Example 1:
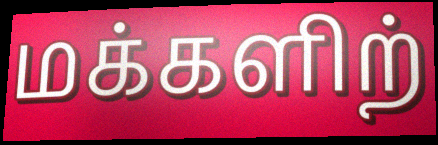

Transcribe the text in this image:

மக்களிற்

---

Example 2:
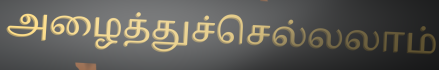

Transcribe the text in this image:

அழைத்துச்செல்லலாம்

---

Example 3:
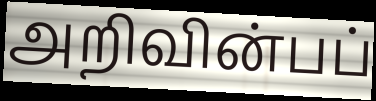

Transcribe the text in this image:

அறிவின்பப்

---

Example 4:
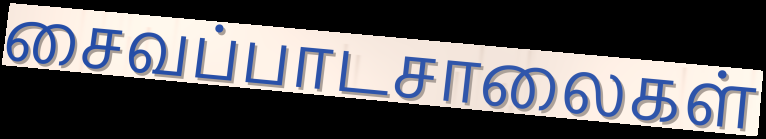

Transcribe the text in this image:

சைவப்பாடசாலைகள்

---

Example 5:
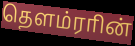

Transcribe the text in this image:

தௌம்ரரின்